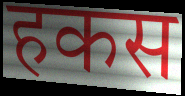
हकस